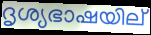
ദൃശ്യഭാഷയില്